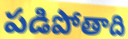
పడిపోతాది